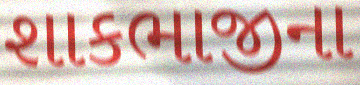
શાકભાજીના